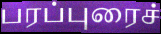
பரப்புரைச்